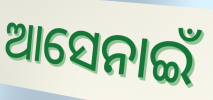
ଆସେନାଇଁ